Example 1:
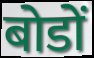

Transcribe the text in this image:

बोडों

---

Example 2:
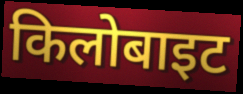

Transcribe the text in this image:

किलोबाइट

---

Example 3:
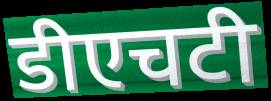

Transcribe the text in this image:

डीएचटी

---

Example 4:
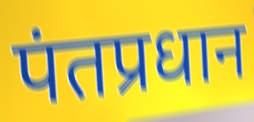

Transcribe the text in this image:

पंतप्रधान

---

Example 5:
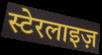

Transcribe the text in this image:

स्टेरलाइज़